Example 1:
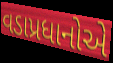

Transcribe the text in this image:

વડાપ્રધાનોએ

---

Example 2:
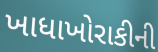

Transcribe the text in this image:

ખાધાખોરાકીની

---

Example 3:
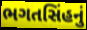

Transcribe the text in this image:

ભગતસિંહનું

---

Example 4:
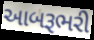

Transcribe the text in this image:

આબરૂભરી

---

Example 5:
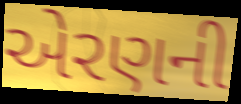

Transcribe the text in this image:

એરણની